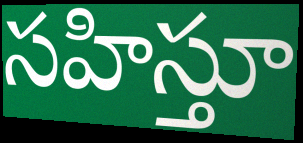
సహిస్తూ